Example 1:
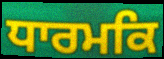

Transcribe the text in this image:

ਧਾਰਮਕਿ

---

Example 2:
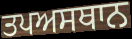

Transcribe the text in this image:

ਤਪਅਸਥਾਨ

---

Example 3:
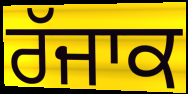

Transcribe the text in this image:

ਰੱਜਾਕ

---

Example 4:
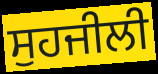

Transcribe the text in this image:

ਸੁਹਜੀਲੀ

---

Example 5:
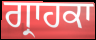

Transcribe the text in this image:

ਗ੍ਰਾਹਕਾ